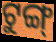
ଟୁଙ୍ଗ୍